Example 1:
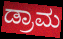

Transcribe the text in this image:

ಡ್ರಾಮ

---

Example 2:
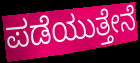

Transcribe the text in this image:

ಪಡೆಯುತ್ತೇನೆ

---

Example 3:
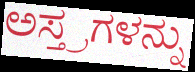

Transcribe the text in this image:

ಅಸ್ತ್ರಗಳನ್ನು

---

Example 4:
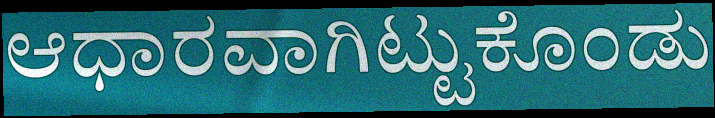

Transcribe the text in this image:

ಆಧಾರವಾಗಿಟ್ಟುಕೊಂಡು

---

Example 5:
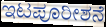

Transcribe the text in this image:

ಇಟಪೂರೀಶನೆ